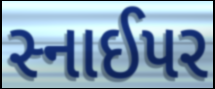
સ્નાઈપર